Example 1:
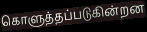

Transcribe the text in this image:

கொளுத்தப்படுகின்றன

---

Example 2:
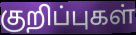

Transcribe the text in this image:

குறிப்புகள்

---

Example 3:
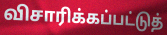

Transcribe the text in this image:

விசாரிக்கப்பட்டுத்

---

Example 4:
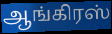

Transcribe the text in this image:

ஆங்கிரஸ்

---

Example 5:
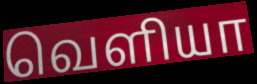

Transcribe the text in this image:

வெளியா